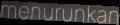
menurunkan